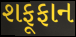
શફૂફાન